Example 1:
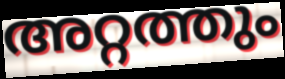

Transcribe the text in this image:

അറ്റത്തും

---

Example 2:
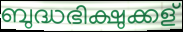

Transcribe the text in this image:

ബുദ്ധഭിക്ഷുക്കള്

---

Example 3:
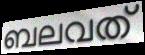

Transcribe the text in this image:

ബലവത്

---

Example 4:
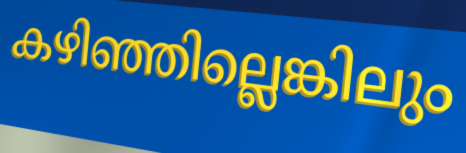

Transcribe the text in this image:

കഴിഞ്ഞില്ലെങ്കിലും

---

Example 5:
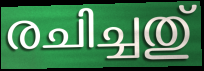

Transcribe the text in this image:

രചിച്ചതു്